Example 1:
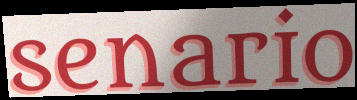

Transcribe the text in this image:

senario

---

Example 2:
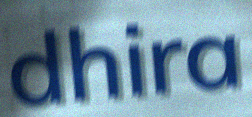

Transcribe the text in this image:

dhira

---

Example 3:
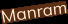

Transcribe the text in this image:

Manram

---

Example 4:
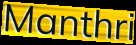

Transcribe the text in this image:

Manthri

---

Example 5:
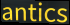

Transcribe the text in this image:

antics